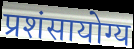
प्रशंसायोग्य